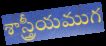
శాస్త్రీయముగ